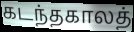
கடந்தகாலத்